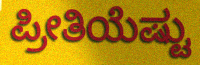
ಪ್ರೀತಿಯೆಷ್ಟು